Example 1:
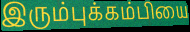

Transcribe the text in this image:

இரும்புக்கம்பியை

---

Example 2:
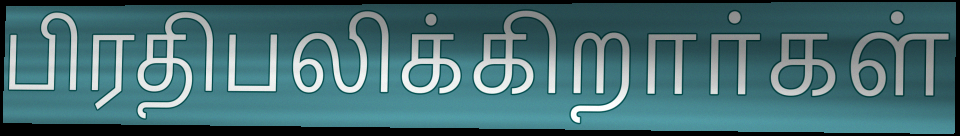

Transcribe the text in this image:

பிரதிபலிக்கிறார்கள்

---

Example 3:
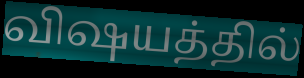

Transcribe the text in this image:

விஷயத்தில்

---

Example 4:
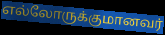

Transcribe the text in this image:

எல்லோருக்குமானவர்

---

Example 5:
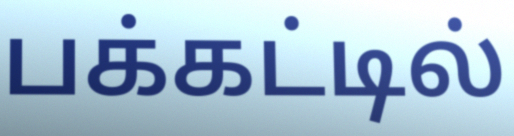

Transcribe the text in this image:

பக்கட்டில்